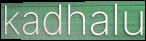
kadhalu